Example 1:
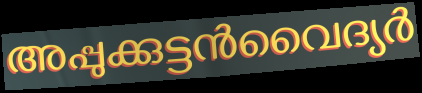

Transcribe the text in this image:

അപ്പുക്കുട്ടൻവൈദ്യർ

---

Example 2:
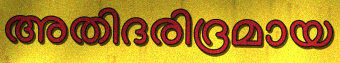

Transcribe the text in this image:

അതിദരിദ്രമായ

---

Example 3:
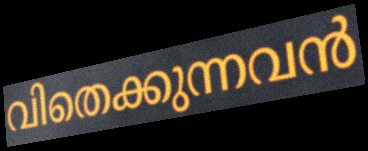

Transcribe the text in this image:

വിതെക്കുന്നവൻ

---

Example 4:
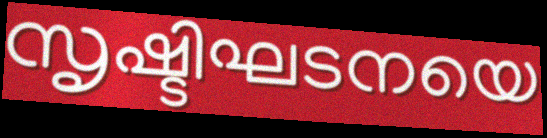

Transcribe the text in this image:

സൃഷ്ടിഘടനയെ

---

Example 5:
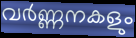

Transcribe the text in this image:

വർണ്ണനകളും